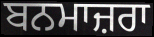
ਬਨਮਾਜ਼ਰਾ